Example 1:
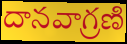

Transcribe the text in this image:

దానవాగ్రణి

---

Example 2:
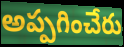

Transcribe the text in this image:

అప్పగించేరు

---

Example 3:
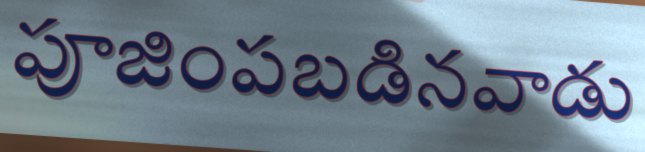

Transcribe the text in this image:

పూజింపబడినవాడు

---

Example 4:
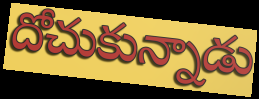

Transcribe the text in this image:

దోచుకున్నాడు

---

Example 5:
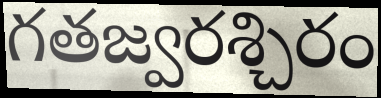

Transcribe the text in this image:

గతజ్వరశ్చిరం